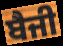
ਬੈਜੀ